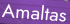
Amaltas